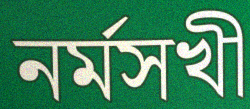
নর্মসখী